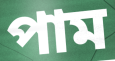
পাম